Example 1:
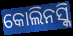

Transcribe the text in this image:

କୋଲିନସ୍କି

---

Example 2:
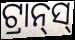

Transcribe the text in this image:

ଟ୍ରାନ୍‍ସ୍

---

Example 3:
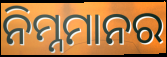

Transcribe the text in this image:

ନିମ୍ନମାନର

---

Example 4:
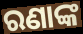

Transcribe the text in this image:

ରଣାଙ୍କ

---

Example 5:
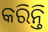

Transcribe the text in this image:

କରିନ୍ତି